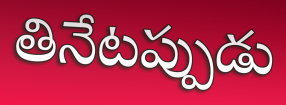
తినేటప్పుడు